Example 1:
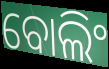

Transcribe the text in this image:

ବୋଲିଂ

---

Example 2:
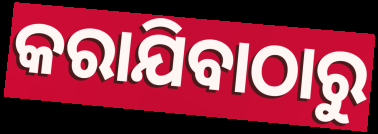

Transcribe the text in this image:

କରାଯିବାଠାରୁ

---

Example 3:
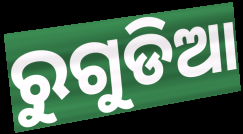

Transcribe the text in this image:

ରୁଗୁଡିଆ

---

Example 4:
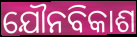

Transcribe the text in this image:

ଯୌନବିକାଶ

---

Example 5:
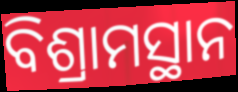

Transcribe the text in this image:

ବିଶ୍ରାମସ୍ଥାନ